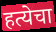
हत्येचा